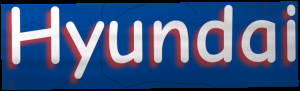
Hyundai